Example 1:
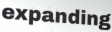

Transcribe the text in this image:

expanding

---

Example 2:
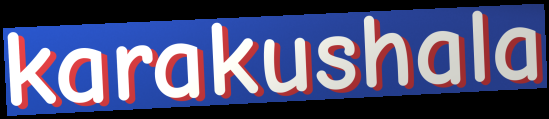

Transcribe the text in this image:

karakushala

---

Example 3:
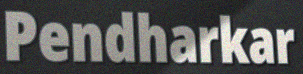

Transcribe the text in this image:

Pendharkar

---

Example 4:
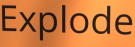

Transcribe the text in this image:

Explode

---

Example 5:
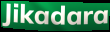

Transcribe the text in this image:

Jikadara